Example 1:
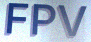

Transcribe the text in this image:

FPV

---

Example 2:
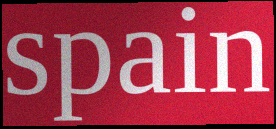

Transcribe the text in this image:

spain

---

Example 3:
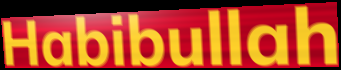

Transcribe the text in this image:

Habibullah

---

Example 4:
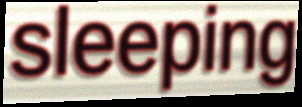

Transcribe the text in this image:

sleeping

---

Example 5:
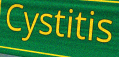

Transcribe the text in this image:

Cystitis